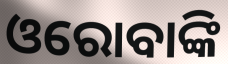
ଓରୋବାଙ୍କି